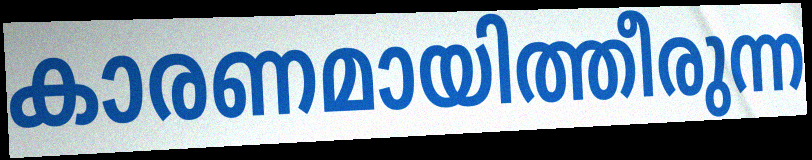
കാരണമായിത്തീരുന്ന